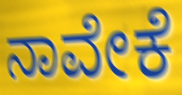
ನಾವೇಕೆ